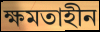
ক্ষমতাহীন